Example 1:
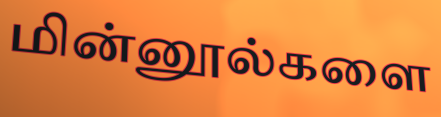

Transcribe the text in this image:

மின்னூல்களை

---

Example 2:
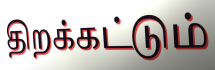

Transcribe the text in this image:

திறக்கட்டும்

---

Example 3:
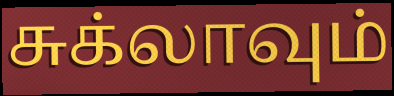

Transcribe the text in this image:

சுக்லாவும்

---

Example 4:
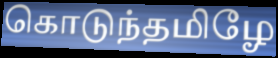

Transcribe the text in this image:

கொடுந்தமிழே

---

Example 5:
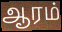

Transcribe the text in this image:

ஆரம்